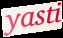
yasti